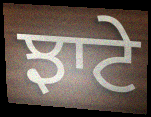
ਝਾਟੇ